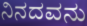
ನಿನದವನು